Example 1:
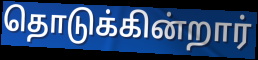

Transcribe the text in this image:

தொடுக்கின்றார்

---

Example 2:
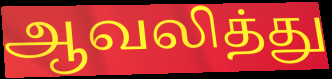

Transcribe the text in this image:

ஆவலித்து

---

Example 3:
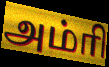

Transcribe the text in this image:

அம்ரி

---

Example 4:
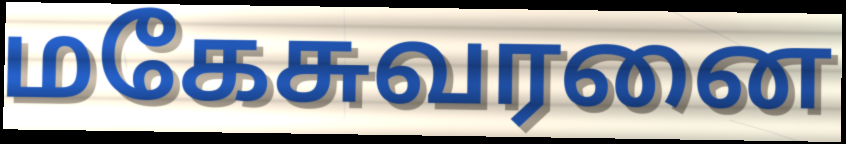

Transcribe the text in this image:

மகேசுவரனை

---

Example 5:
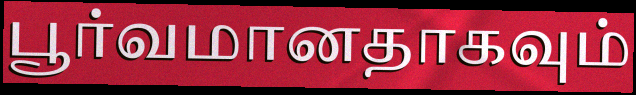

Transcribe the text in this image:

பூர்வமானதாகவும்